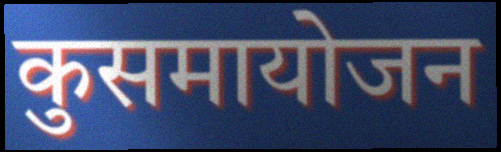
कुसमायोजन